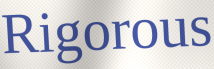
Rigorous